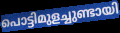
പൊട്ടിമുളച്ചുണ്ടായി